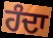
ਹੰਦਾ